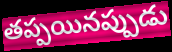
తప్పయినప్పుడు